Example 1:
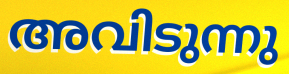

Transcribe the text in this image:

അവിടുന്നു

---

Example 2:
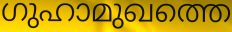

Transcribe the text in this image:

ഗുഹാമുഖത്തെ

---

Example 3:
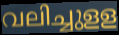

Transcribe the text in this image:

വലിച്ചുളള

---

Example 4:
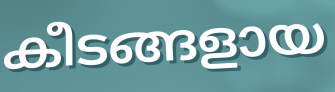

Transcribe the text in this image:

കീടങ്ങളായ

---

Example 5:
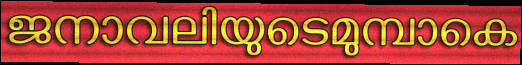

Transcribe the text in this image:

ജനാവലിയുടെമുമ്പാകെ